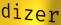
dizer